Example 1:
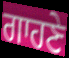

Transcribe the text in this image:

ਗਾਹਣੇ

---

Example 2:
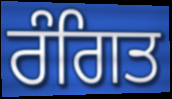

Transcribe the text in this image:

ਰੰਗਿਤ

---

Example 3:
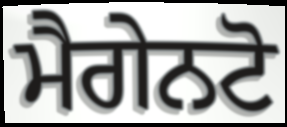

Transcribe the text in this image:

ਮੈਗੇਨਟੋ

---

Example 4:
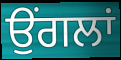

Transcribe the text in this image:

ਉੰਗਲਾਂ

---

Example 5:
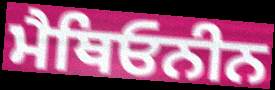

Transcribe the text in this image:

ਮੈਥਿਓਨੀਨ